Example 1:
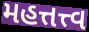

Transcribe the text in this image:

મહત્તત્ત્વ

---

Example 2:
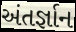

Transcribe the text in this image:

અંતર્જ્ઞાન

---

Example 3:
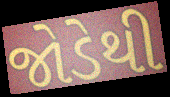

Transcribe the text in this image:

જોડેથી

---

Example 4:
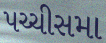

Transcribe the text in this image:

પચ્ચીસમા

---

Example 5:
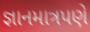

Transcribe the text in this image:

જ્ઞાનમાત્રપણે